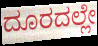
ದೂರದಲ್ಲೇ